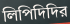
লিপিদিদির